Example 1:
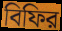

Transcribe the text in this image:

বিফির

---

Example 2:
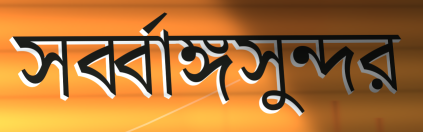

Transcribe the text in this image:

সর্ব্বাঙ্গসুন্দর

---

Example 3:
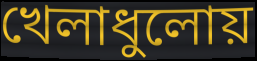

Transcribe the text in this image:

খেলাধুলোয়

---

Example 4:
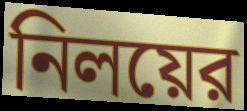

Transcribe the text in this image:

নিলয়ের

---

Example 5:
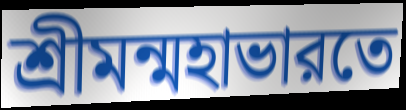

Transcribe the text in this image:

শ্রীমন্মহাভারতে